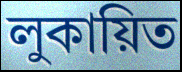
লুকায়িত